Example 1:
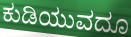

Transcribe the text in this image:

ಕುಡಿಯುವದೂ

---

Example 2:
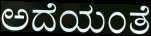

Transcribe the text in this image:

ಅದೆಯಂತೆ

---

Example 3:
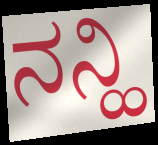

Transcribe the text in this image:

ನನ್ಹಿ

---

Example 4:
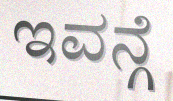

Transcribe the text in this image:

ಇವನ್ಗೆ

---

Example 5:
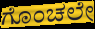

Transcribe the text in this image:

ಗೊಂಚಲೇ